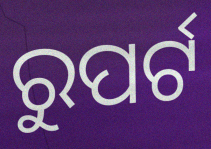
ରୁପର୍ଟ